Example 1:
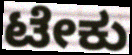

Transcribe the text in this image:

ಟೇಕು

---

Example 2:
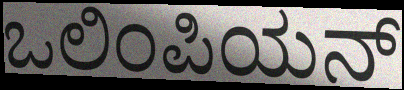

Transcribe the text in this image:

ಒಲಿಂಪಿಯನ್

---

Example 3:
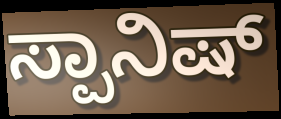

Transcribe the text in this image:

ಸ್ಪಾನಿಷ್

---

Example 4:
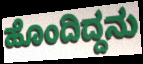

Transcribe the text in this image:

ಹೊಂದಿದ್ದನು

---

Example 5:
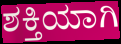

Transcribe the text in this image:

ಶಕ್ತಿಯಾಗಿ